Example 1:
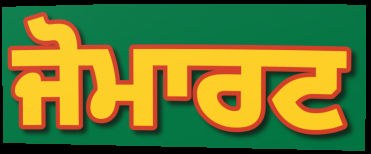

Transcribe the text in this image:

ਜੋਮਾਰਟ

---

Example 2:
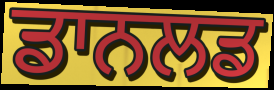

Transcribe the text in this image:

ਡਾਨਲਡ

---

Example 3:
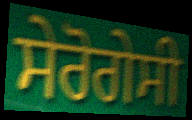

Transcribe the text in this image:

ਸੇਰੋਗੇਸੀ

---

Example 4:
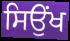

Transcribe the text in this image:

ਸਿਉਂਖ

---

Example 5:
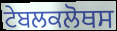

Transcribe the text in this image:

ਟੇਬਲਕਲੋਥਸ